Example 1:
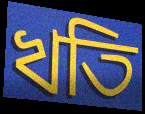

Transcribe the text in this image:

খতি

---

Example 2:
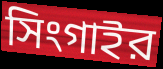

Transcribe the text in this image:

সিংগাইর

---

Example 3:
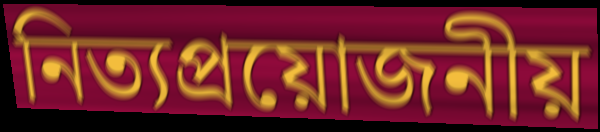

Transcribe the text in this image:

নিত্যপ্রয়োজনীয়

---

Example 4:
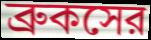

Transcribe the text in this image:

ব্রুকসের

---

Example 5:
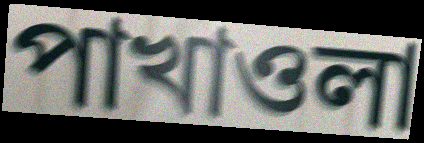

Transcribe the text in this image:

পাখাওলা